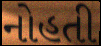
નોહતી